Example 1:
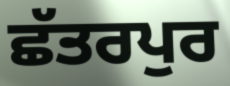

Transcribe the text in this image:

ਛੱਤਰਪੁਰ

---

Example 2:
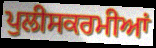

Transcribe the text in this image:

ਪੁਲੀਸਕਰਮੀਆਂ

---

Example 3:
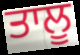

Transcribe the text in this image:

ਤਾਲੂ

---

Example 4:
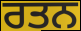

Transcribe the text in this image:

ਰਤਨ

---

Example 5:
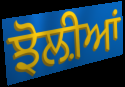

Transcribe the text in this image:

ਝੋਲ਼ੀਆਂ